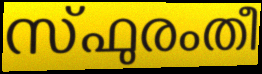
സ്ഫുരംതീ